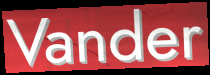
Vander